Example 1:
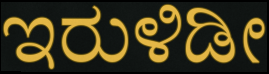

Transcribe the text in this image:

ಇರುಳಿಡೀ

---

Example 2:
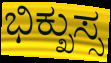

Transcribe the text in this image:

ಭಿಕ್ಖುಸ್ಸ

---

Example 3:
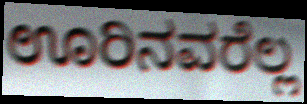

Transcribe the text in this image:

ಊರಿನವರೆಲ್ಲ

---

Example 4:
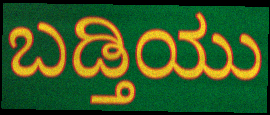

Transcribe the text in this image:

ಬಡ್ತಿಯು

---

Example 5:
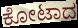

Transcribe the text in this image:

ಕೋಟಾದ